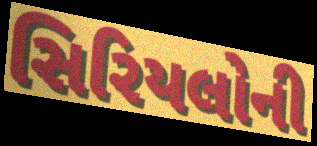
સિરિયલોની